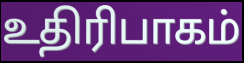
உதிரிபாகம்